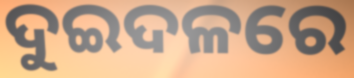
ଦୁଇଦଳରେ